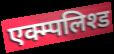
एक्म्पलिश्ड